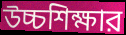
উচ্চশিক্ষার